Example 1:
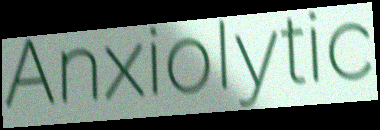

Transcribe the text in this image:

Anxiolytic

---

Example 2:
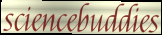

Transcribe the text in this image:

sciencebuddies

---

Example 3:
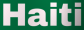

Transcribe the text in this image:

Haiti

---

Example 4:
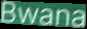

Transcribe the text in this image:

Bwana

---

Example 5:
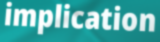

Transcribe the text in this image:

implication